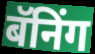
बॅनिंग